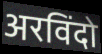
अरविंदो